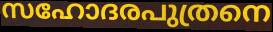
സഹോദരപുത്രനെ